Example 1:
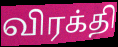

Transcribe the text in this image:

விரக்தி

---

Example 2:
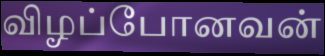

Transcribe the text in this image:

விழப்போனவன்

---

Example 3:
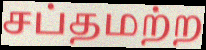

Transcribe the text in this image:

சப்தமற்ற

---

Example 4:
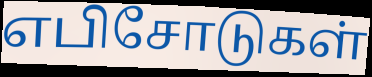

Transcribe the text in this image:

எபிசோடுகள்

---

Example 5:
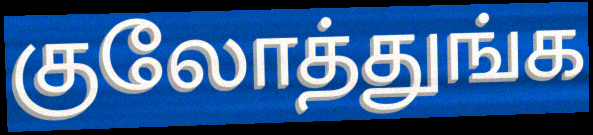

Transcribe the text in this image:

குலோத்துங்க